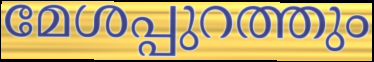
മേശപ്പുറത്തും